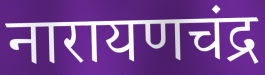
नारायणचंद्र